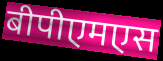
बीपीएमएस